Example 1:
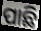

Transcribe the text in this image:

ପାଛି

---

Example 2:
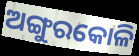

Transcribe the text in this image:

ଅଙ୍ଗୁରକୋଳି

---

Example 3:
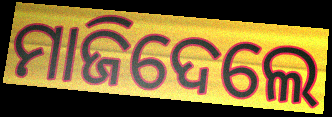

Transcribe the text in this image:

ମାଜିଦେଲେ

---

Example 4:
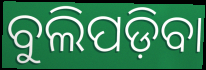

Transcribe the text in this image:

ବୁଲିପଡ଼ିବା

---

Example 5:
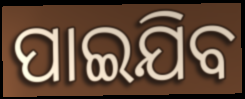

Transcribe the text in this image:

ପାଇଯିବ